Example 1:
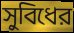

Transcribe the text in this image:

সুবিধের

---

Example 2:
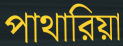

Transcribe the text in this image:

পাথারিয়া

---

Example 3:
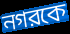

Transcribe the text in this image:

নগরকে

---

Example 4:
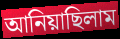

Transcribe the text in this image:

আনিয়াছিলাম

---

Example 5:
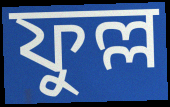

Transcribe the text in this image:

ফুল্ল